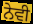
ਨੇਵੀ